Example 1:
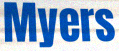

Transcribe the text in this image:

Myers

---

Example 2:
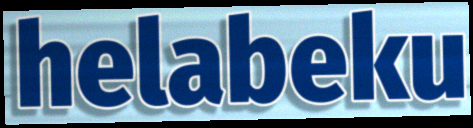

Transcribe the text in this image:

helabeku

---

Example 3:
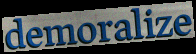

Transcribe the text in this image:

demoralize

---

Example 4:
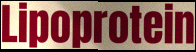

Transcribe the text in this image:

Lipoprotein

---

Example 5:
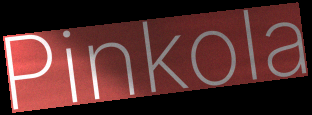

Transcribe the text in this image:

Pinkola